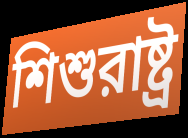
শিশুরাষ্ট্র